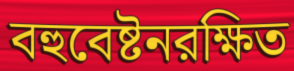
বহুবেষ্টনরক্ষিত